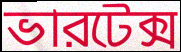
ভারটেক্স